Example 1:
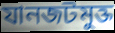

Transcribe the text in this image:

যানজটমুক্ত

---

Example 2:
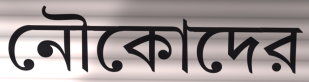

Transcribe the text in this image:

নৌকোদের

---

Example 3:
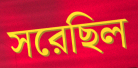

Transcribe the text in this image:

সরেছিল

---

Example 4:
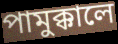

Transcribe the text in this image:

পামুক্কালে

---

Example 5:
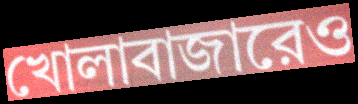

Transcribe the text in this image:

খোলাবাজারেও